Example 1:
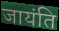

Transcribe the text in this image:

जायंति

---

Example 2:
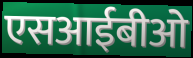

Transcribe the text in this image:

एसआईबीओ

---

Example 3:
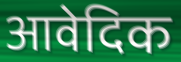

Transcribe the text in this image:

आवेदिक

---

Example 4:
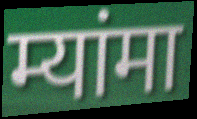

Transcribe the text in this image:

म्यांमा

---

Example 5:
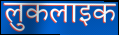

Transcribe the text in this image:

लुकलाइक